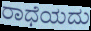
ರಾಧೆಯದು